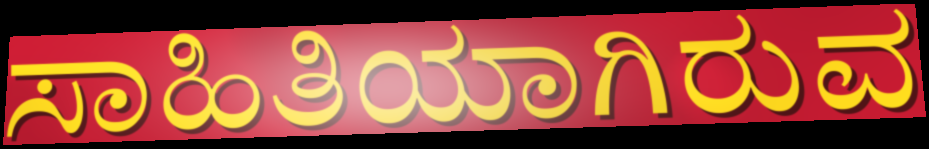
ಸಾಹಿತಿಯಾಗಿರುವ